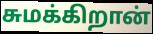
சுமக்கிறான்